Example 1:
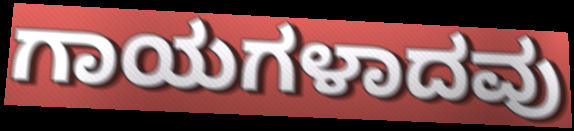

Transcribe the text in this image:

ಗಾಯಗಳಾದವು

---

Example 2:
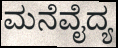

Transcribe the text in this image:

ಮನೆವೈದ್ಯ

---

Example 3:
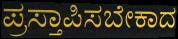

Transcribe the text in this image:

ಪ್ರಸ್ತಾಪಿಸಬೇಕಾದ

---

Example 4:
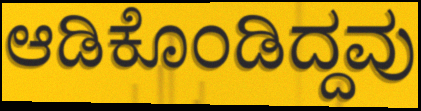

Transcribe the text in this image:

ಆಡಿಕೊಂಡಿದ್ದವು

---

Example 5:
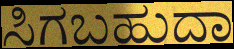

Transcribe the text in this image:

ಸಿಗಬಹುದಾ